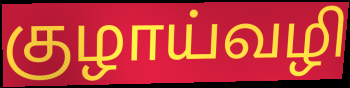
குழாய்வழி